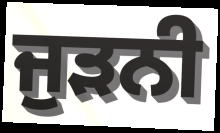
ਜੁੜਨੀ